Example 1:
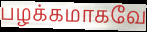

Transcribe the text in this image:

பழக்கமாகவே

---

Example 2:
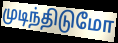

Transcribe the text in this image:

முடிந்திடுமோ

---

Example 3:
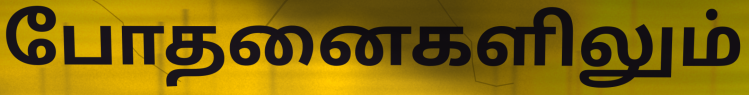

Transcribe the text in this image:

போதனைகளிலும்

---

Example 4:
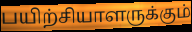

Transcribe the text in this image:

பயிற்சியாளருக்கும்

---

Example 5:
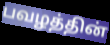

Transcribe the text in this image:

பவழத்தின்